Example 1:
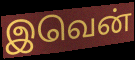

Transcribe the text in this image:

இவென்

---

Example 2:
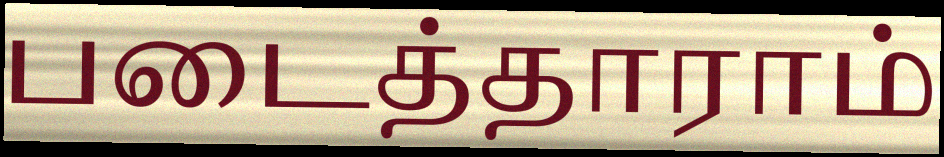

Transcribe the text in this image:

படைத்தாராம்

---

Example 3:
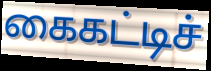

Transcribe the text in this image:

கைகட்டிச்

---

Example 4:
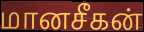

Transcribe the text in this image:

மானசீகன்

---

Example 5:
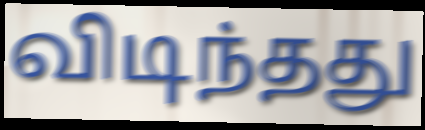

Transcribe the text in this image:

விடிந்தது